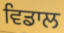
ਵਿਡਾਲ